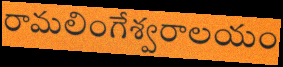
రామలింగేశ్వరాలయం